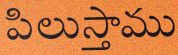
పిలుస్తాము